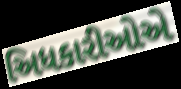
અિધકારીઓએ